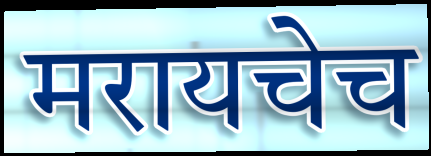
मरायचेच